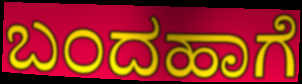
ಬಂದಹಾಗೆ